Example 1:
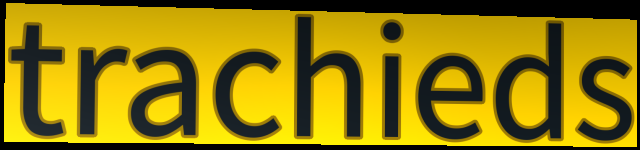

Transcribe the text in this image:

trachieds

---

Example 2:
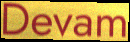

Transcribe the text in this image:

Devam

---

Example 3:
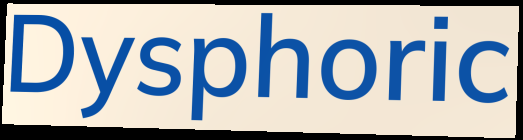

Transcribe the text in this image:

Dysphoric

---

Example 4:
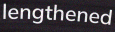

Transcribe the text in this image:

lengthened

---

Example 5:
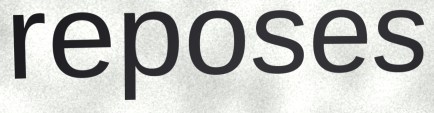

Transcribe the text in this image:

reposes